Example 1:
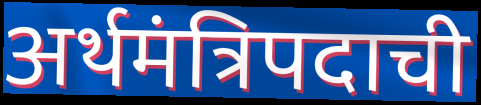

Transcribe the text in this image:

अर्थमंत्रिपदाची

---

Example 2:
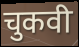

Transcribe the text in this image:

चुकवी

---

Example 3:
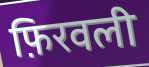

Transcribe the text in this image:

फ़िरवली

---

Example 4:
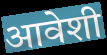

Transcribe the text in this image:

आवेशी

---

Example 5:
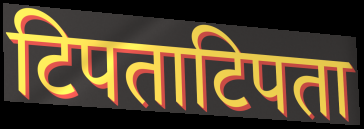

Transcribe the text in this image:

टिपताटिपता